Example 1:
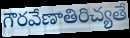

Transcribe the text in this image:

గౌరవేణాతిరిచ్యతే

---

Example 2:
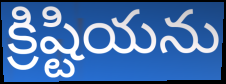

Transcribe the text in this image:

క్రిష్టియను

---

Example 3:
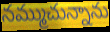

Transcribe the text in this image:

నమ్ముచున్నాను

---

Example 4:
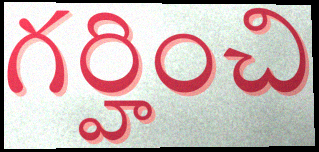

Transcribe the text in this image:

గర్హించి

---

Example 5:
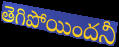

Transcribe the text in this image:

తెగిపోయిందనీ